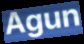
Agun